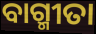
ବାଗ୍ମୀତା